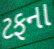
ટફના